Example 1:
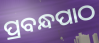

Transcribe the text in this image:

ପ୍ରବନ୍ଧପାଠ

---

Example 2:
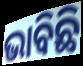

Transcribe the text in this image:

ଭାବିଛି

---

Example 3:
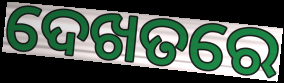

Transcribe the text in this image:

ଦେଖତରେ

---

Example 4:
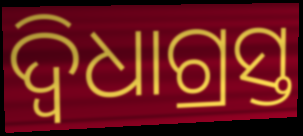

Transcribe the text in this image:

ଦ୍ୱିଧାଗ୍ରସ୍ତ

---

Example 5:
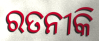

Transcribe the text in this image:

ରତନୀକି